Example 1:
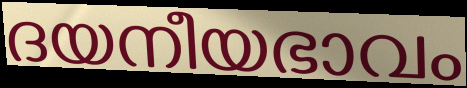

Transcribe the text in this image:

ദയനീയഭാവം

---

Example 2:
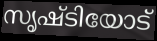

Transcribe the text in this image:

സൃഷ്ടിയോട്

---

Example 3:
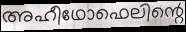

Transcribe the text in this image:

അഹീഥോഫെലിന്റെ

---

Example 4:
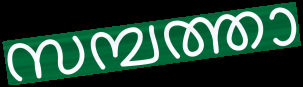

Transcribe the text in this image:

സമ്പത്താ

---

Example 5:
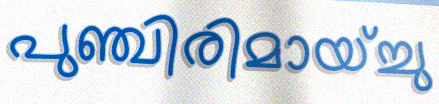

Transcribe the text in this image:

പുഞ്ചിരിമായ്ച്ചു